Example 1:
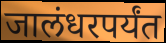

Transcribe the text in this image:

जालंधरपर्यंत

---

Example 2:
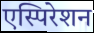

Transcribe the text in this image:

एस्पिरेशन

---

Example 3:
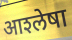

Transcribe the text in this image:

आश्‍लेषा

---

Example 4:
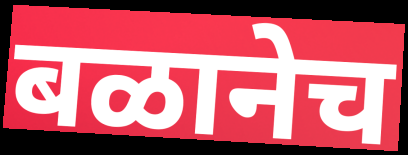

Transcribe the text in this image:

बळानेच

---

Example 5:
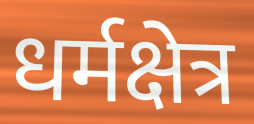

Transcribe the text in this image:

धर्मक्षेत्र